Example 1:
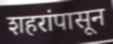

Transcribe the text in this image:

शहरांपासून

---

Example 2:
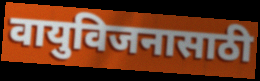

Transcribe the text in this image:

वायुविजनासाठी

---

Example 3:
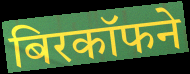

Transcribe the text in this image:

बिरकॉफने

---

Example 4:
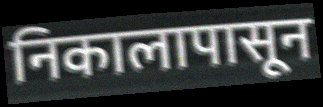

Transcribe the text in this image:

निकालापासून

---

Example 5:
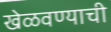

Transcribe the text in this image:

खेळवण्याची